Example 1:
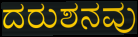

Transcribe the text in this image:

ದರುಶನವು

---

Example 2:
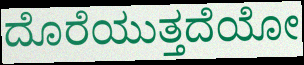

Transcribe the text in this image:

ದೊರೆಯುತ್ತದೆಯೋ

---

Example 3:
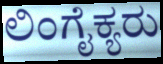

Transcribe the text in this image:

ಲಿಂಗೈಕ್ಯರು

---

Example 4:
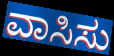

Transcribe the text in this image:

ವಾಸಿಸು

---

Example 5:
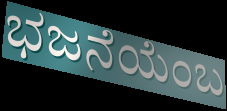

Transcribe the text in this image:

ಭಜನೆಯೆಂಬ